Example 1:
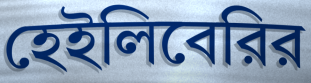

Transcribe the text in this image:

হেইলিবেরির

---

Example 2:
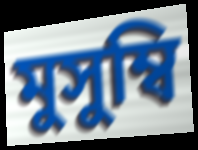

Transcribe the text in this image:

মুসুম্বি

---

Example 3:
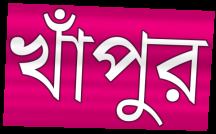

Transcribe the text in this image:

খাঁপুর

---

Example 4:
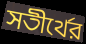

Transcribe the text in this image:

সতীর্থের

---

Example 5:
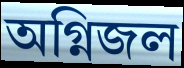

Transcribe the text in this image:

অগ্নিজল